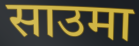
साउमा